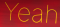
Yeah